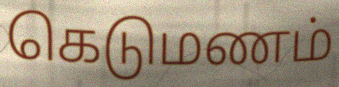
கெடுமணம்